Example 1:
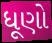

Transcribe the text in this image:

ધૂણો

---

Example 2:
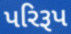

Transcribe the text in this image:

પરિરૂપ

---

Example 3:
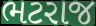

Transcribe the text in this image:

ભટરાજ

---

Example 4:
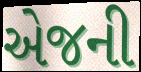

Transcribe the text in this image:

એજની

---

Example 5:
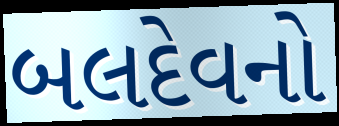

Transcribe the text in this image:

બલદેવનો